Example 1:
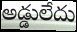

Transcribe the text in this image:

అడ్డులేదు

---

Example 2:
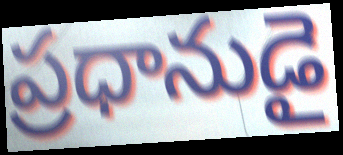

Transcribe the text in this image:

ప్రధానుడై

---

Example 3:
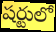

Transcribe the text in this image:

షర్టులో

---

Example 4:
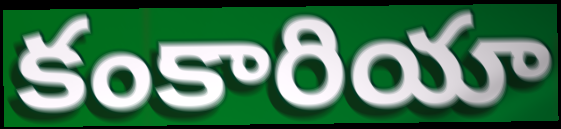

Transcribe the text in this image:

కంకారియా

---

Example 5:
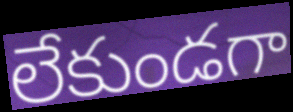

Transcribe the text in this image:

లేకుండగా